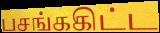
பசங்ககிட்ட